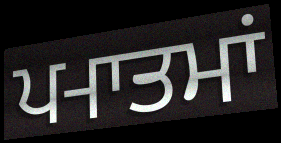
ਪ੍ਮਾਤਮਾਂ